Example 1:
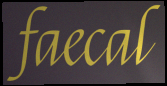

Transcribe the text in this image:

faecal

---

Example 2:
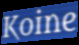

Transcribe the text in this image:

Koine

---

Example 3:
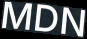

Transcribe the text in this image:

MDN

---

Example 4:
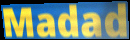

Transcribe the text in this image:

Madad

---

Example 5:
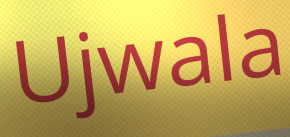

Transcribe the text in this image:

Ujwala